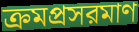
ক্রমপ্রসরমাণ